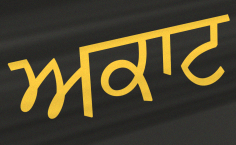
ਅਕਾਟ